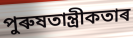
পুৰুষতান্ত্ৰীকতাৰ